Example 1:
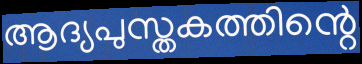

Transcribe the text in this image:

ആദ്യപുസ്തകത്തിന്റെ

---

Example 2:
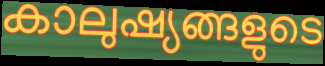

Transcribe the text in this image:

കാലുഷ്യങ്ങളുടെ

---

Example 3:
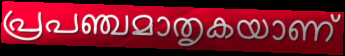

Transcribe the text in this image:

പ്രപഞ്ചമാതൃകയാണ്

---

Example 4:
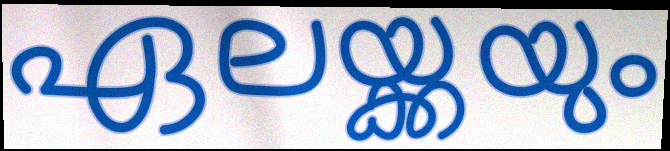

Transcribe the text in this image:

ഏലയ്ക്കയും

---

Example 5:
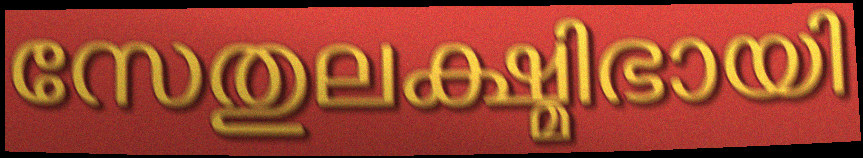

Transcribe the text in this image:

സേതുലക്ഷ്മിഭായി